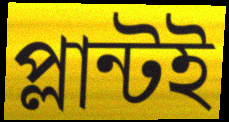
প্লান্টই